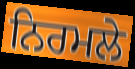
ਨਿਰਮਲੇ